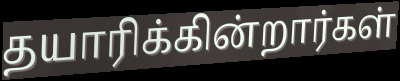
தயாரிக்கின்றார்கள்